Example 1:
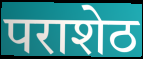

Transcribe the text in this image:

पराशेठ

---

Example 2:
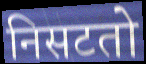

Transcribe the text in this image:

निसटतो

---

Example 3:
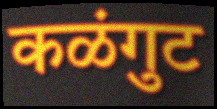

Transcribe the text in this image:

कळंगुट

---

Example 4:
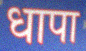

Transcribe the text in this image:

धापा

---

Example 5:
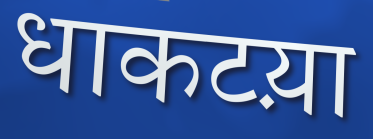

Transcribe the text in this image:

धाकटय़ा